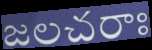
జలచరాః